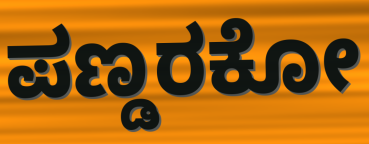
ಪಣ್ಡರಕೋ